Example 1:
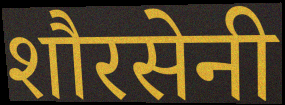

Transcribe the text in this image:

शौरसेनी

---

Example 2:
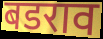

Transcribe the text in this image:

बडराव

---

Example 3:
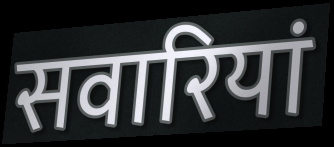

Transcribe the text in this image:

सवारियां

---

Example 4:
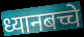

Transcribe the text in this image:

ध्यानबच्चे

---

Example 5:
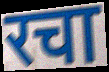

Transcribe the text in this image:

रचा